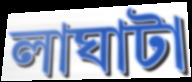
লাঘাটা